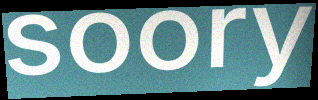
soory